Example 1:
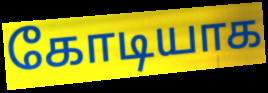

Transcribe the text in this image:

கோடியாக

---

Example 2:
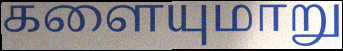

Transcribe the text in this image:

களையுமாறு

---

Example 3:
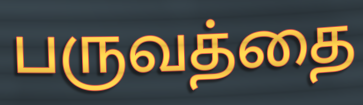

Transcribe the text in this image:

பருவத்தை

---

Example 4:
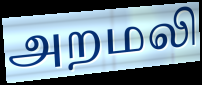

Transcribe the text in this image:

அறமலி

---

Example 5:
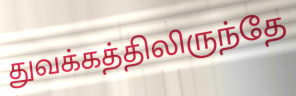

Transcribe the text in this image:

துவக்கத்திலிருந்தே